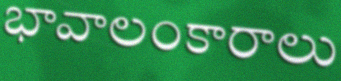
భావాలంకారాలు